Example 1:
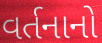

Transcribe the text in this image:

વર્તનાનો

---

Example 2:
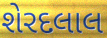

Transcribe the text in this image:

શેરદલાલ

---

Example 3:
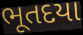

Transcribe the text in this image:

ભૂતદયા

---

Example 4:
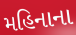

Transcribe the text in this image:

મહિનાના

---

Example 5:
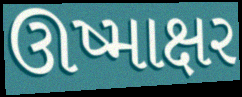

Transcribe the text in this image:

ઊષ્માક્ષર